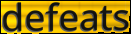
defeats